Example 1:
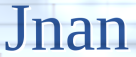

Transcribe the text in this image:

Jnan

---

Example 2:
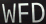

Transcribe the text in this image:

WFD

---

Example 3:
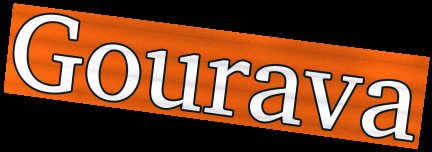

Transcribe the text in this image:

Gourava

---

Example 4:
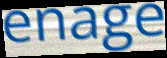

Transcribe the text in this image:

enage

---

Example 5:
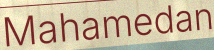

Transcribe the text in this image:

Mahamedan